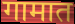
गामात